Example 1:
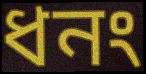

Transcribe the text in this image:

ধনং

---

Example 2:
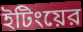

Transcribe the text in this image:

ইটিংয়ের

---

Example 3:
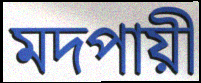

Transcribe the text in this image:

মদপায়ী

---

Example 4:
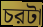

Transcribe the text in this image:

চরটা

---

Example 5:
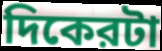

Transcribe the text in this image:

দিকেরটা